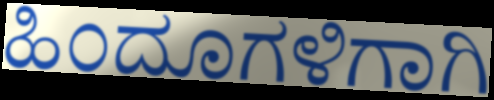
ಹಿಂದೂಗಳಿಗಾಗಿ